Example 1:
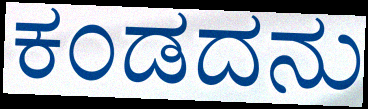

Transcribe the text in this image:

ಕಂಡದನು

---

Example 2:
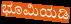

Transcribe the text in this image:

ಭೂಮಿಯಡಿ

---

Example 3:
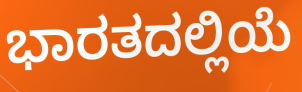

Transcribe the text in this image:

ಭಾರತದಲ್ಲಿಯೆ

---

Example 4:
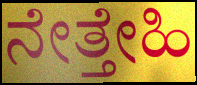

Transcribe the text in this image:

ನೇತ್ತೇಹಿ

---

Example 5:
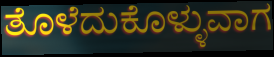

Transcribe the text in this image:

ತೊಳೆದುಕೊಳ್ಳುವಾಗ